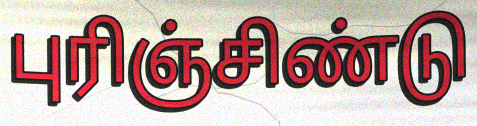
புரிஞ்சிண்டு